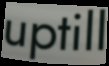
uptill